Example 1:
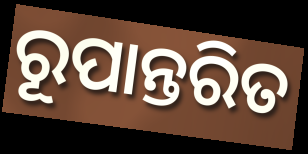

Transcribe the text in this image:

ରୂପାନ୍ତରିତ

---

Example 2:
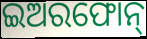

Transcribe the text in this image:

ଇଅରଫୋନ୍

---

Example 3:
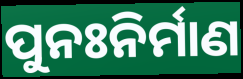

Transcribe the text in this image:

ପୁନଃନିର୍ମାଣ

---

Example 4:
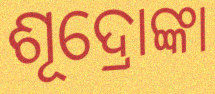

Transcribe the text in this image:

ଶୂଦ୍ରୋଙ୍କା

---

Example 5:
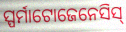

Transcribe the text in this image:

ସ୍ପର୍ମାଟୋଜେନେସିସ୍